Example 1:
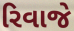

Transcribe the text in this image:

રિવાજે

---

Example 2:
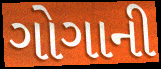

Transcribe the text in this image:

ગોગાની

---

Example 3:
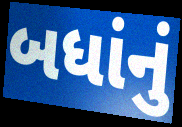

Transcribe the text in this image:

બધાંનું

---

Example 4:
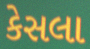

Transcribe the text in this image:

કેસલા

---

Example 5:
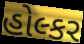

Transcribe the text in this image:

હોલ્કર